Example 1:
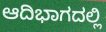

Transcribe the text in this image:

ಆದಿಭಾಗದಲ್ಲಿ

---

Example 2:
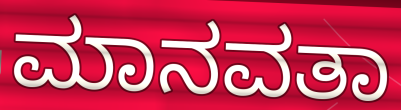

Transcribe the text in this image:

ಮಾನವತಾ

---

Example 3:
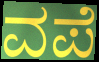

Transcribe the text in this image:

ವಪೆ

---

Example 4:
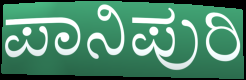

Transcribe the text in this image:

ಪಾನಿಪುರಿ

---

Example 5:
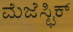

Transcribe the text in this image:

ಮೆಜೆಸ್ಟಿಕ್